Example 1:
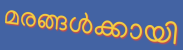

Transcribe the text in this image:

മരങ്ങൾക്കായി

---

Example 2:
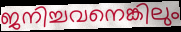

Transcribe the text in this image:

ജനിച്ചവനെങ്കിലും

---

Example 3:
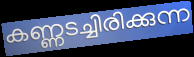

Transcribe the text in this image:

കണ്ണടച്ചിരിക്കുന്ന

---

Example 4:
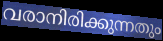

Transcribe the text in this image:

വരാനിരിക്കുന്നതും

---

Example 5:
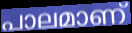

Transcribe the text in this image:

പാലമാണ്